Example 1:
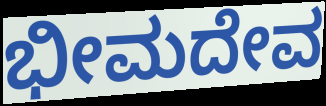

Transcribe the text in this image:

ಭೀಮದೇವ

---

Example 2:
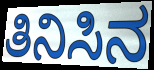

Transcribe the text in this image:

ತಿನಿಸಿನ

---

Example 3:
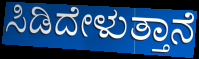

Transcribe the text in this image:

ಸಿಡಿದೇಳುತ್ತಾನೆ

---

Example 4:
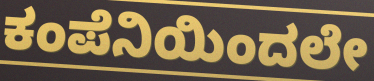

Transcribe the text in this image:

ಕಂಪೆನಿಯಿಂದಲೇ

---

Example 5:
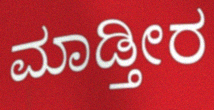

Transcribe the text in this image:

ಮಾಡ್ತೀರ